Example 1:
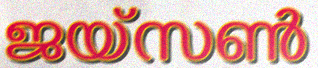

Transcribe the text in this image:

ജയ്സൺ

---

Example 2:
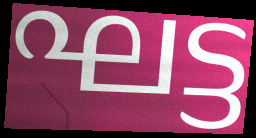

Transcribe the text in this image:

ഘട്ട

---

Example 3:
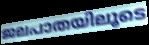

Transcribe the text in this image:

ജലപാതയിലൂടെ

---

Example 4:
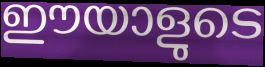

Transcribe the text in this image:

ഈയാളുടെ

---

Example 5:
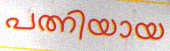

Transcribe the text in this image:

പത്നിയായ